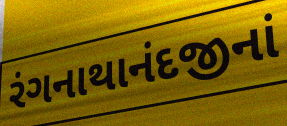
રંગનાથાનંદજીનાં